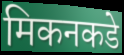
मिकनकडे